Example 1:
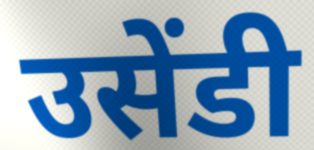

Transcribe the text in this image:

उसेंडी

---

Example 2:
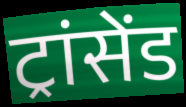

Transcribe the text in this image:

ट्रांसेंड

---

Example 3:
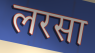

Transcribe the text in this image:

लरसा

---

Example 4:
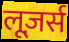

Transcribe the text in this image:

लूज़र्स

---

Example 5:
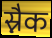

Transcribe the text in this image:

स्नैक